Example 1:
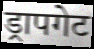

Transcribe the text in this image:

ड्रापगेट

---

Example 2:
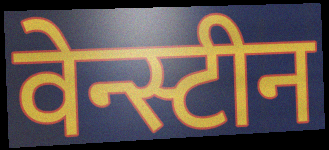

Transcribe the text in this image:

वेन्स्टीन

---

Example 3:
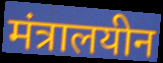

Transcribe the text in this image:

मंत्रालयीन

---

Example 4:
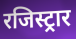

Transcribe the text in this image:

रजिस्ट्रार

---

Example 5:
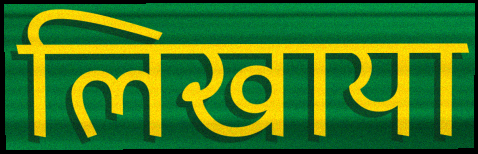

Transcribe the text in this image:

लिखाया